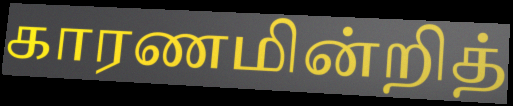
காரணமின்றித்